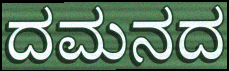
ದಮನದ